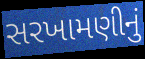
સરખામણીનું